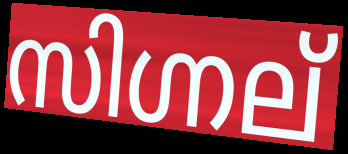
സിഗ്നല്